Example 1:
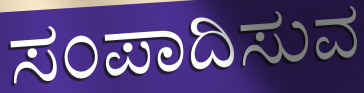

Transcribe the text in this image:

ಸಂಪಾದಿಸುವ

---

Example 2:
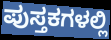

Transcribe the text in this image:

ಪುಸ್ತಕಗಳಲ್ಲಿ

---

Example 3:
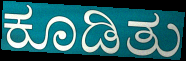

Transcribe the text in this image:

ಕೂಡಿತು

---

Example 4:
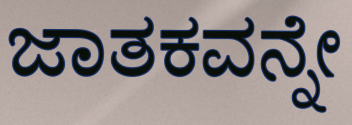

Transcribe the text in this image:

ಜಾತಕವನ್ನೇ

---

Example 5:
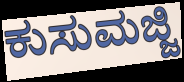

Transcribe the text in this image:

ಕುಸುಮಜ್ಜಿ